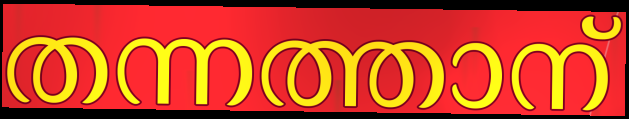
തന്നത്താന്